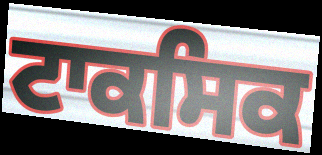
ਟਾਕਸਿਕ